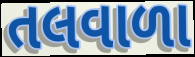
તલવાળા